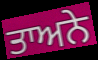
ਤਾਅਨੇ